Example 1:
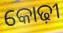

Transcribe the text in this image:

କୋଢ଼ୀ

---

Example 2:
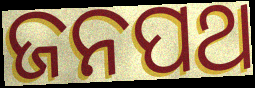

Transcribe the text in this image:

ଜନପଥ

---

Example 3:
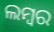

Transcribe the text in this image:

ଲମ୍ୱର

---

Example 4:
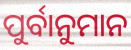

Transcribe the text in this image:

ପୁର୍ବାନୁମାନ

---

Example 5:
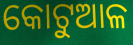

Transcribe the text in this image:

କୋଟୁଆଳ